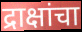
द्राक्षांचा